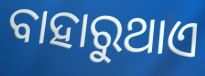
ବାହାରୁଥାଏ